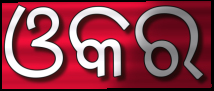
ଓକର